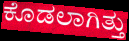
ಕೊಡಲಾಗಿತ್ತು